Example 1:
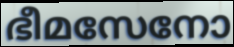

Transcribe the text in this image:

ഭീമസേനോ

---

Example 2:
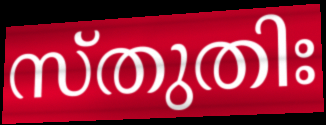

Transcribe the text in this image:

സ്തുതിഃ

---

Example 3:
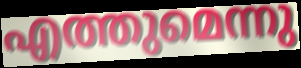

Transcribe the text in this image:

എത്തുമെന്നു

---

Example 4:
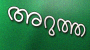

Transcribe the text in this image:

അറുത്ത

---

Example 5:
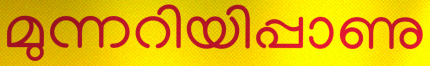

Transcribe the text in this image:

മുന്നറിയിപ്പാണു